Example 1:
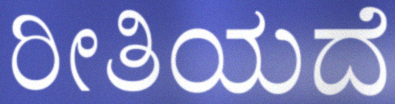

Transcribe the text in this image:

ರೀತಿಯದೆ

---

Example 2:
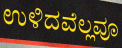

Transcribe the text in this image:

ಉಳಿದವೆಲ್ಲವೂ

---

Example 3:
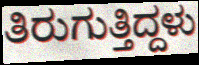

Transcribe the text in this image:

ತಿರುಗುತ್ತಿದ್ದಳು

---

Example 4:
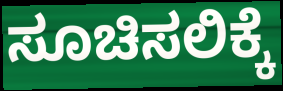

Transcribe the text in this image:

ಸೂಚಿಸಲಿಕ್ಕೆ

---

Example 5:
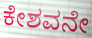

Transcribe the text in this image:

ಕೇಶವನೇ